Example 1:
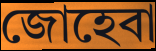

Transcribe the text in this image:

জোহেবা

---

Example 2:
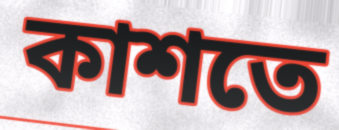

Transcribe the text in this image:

কাশতে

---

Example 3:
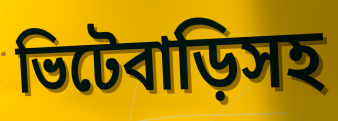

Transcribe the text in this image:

ভিটেবাড়িসহ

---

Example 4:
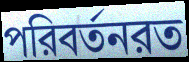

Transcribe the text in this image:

পরিবর্তনরত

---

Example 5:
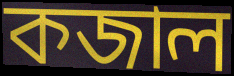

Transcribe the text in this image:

কজাল